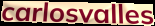
carlosvalles